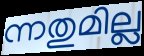
ന്നതുമില്ല